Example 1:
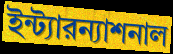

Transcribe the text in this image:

ইন্ট্যারন্যাশনাল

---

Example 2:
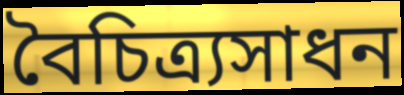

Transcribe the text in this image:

বৈচিত্র্যসাধন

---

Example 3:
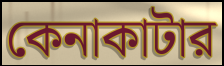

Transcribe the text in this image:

কেনাকাটার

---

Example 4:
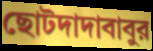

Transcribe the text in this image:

ছোটদাদাবাবুর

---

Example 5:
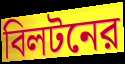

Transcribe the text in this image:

বিলটনের